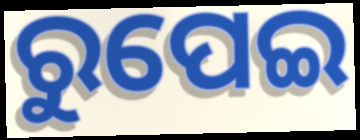
ରୁପେଇ